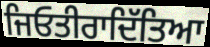
ਜਿਓਤੀਰਾਦਿੱਤਿਆ